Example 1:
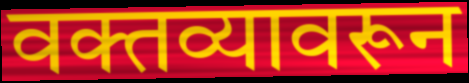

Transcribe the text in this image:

वक्तव्यावरून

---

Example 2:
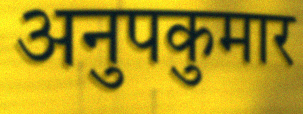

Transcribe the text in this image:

अनुपकुमार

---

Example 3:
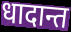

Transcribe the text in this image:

धादान्त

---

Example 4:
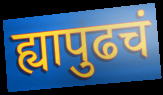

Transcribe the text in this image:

ह्यापुढचं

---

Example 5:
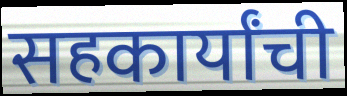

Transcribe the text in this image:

सहकार्यांची